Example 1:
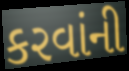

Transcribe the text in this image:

કરવાંની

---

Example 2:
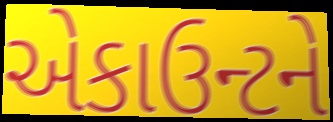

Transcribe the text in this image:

એકાઉન્ટને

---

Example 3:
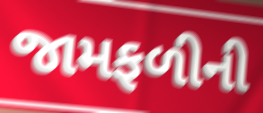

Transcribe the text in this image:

જામફળીની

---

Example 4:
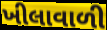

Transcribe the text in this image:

ખીલાવાળી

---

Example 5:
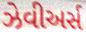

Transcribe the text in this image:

ઝેવીઅર્સ